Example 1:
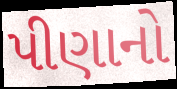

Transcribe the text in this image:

પીણાનો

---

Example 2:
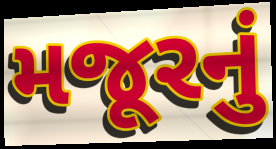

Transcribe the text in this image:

મજૂરનું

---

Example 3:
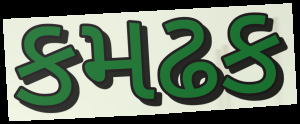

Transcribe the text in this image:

કમઢક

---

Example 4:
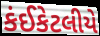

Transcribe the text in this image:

કંઈકેટલીયે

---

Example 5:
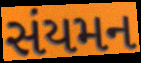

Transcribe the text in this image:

સંયમન